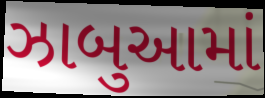
ઝાબુઆમાં